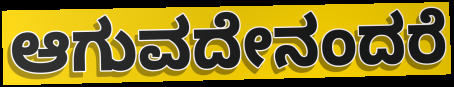
ಆಗುವದೇನಂದರೆ